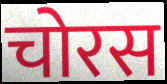
चोरस